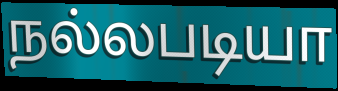
நல்லபடியா